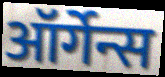
ऑर्गेन्स